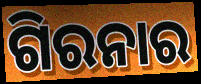
ଗିରନାର